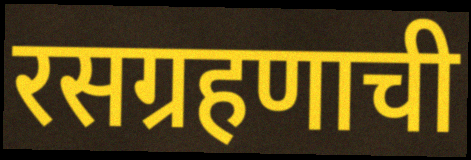
रसग्रहणाची